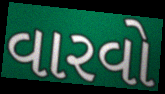
વારવો